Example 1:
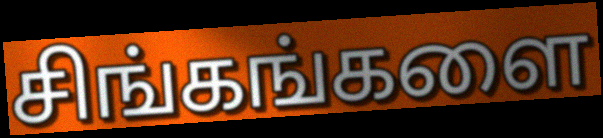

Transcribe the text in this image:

சிங்கங்களை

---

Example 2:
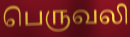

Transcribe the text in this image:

பெருவலி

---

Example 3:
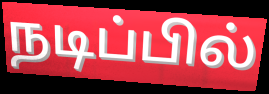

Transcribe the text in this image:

நடிப்பில்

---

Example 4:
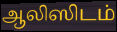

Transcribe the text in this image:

ஆலிஸிடம்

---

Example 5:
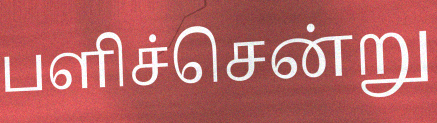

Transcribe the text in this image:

பளிச்சென்று